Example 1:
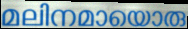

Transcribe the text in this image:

മലിനമായൊരു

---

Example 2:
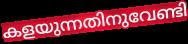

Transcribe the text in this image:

കളയുന്നതിനുവേണ്ടി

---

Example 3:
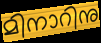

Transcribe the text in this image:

മിനാറിനു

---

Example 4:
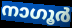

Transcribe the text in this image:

നാഗൂർ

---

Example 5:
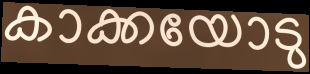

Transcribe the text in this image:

കാക്കയോടു